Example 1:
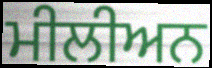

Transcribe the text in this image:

ਮੀਲੀਅਨ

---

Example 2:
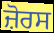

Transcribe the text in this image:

ਜ਼ੋਰਸ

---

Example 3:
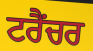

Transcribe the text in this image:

ਟਰੈਂਚਰ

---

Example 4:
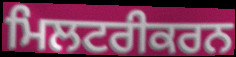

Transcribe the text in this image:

ਮਿਲਟਰੀਕਰਨ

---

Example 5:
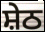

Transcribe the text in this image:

ਸ਼ੇਠ